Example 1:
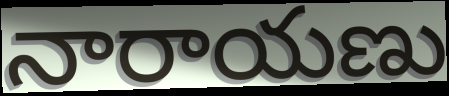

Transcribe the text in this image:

నారాయణు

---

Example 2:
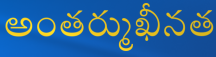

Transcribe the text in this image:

అంతర్ముఖీనత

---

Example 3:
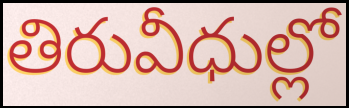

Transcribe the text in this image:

తిరువీధుల్లో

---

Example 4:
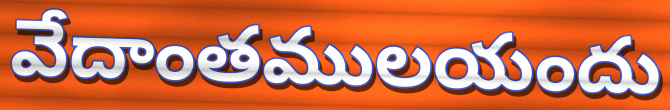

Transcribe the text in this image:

వేదాంతములయందు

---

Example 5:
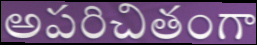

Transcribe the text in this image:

అపరిచితంగా